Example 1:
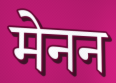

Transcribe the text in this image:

मेनन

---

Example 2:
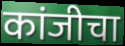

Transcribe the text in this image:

कांजीचा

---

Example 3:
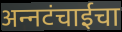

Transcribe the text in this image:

अन्नटंचाईचा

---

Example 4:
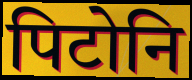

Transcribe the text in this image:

पिटोनि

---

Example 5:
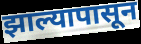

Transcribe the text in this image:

झाल्यापासून